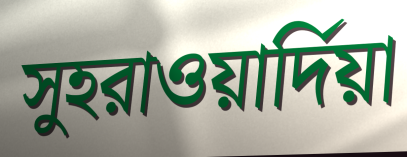
সুহরাওয়ার্দিয়া